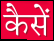
कैसें